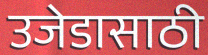
उजेडासाठी